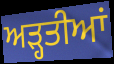
ਅੜ੍ਹਤੀਆਂ